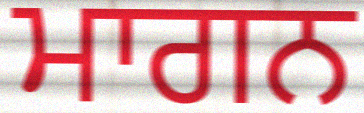
ਮਾਗਨ